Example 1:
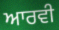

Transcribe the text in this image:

ਆਰਵੀ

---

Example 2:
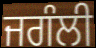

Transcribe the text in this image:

ਜਗੰਲੀ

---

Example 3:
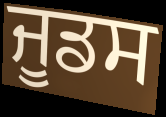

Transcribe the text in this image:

ਜੂਡਸ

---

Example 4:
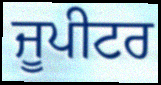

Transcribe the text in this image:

ਜੂਪੀਟਰ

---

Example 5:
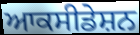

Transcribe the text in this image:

ਆਕਸੀਡੇਸ਼ਨ